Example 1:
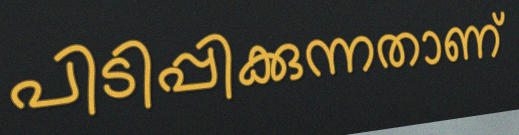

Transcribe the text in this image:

പിടിപ്പിക്കുന്നതാണ്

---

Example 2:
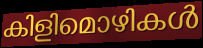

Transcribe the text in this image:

കിളിമൊഴികൾ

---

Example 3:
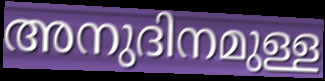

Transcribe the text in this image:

അനുദിനമുള്ള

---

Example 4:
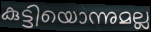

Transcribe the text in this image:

കുട്ടിയൊന്നുമല്ല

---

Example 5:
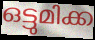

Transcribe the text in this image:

ഒട്ടുമിക്ക